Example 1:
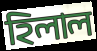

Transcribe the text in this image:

হিলাল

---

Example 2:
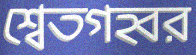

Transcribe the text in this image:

শ্বেতগহ্বর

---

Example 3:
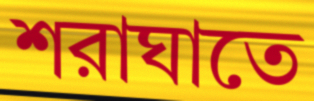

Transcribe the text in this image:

শরাঘাতে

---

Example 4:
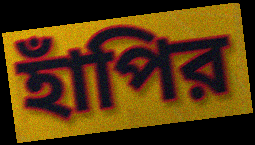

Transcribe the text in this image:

হাঁপির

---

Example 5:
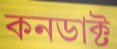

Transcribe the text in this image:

কনডাক্ট